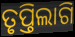
ତୃପ୍ତିଲାଗି